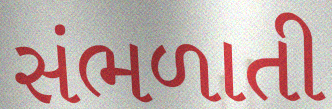
સંભળાતી